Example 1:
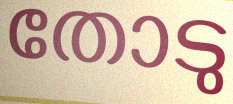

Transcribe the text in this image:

തോടു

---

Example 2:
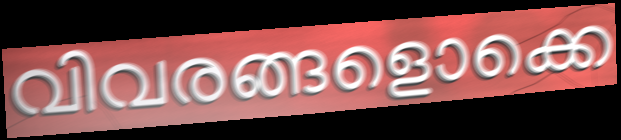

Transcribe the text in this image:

വിവരങ്ങളൊക്കെ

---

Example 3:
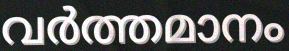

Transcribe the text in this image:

വർത്തമാനം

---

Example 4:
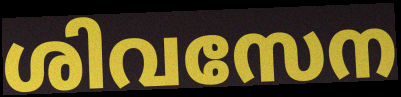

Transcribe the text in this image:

ശിവസേന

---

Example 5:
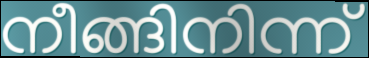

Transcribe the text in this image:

നീങ്ങിനിന്ന്